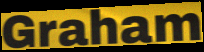
Graham